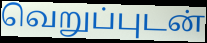
வெறுப்புடன்